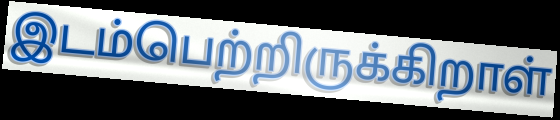
இடம்பெற்றிருக்கிறாள்